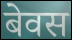
बेवस